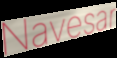
Navesar